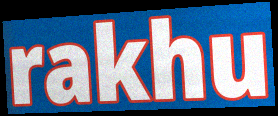
rakhu